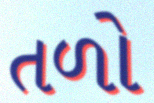
તળો